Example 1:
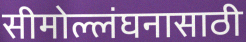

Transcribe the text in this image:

सीमोल्लंघनासाठी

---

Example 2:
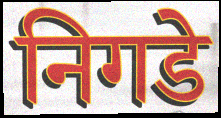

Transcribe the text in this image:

निगडे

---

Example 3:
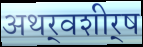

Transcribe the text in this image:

अथर्वशीर्ष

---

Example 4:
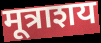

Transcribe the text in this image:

मूत्राशय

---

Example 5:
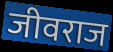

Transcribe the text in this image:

जीवराज